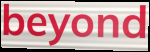
beyond